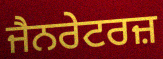
ਜੈਨਰੇਟਰਜ਼